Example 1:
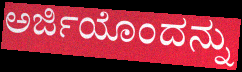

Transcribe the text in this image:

ಅರ್ಜಿಯೊಂದನ್ನು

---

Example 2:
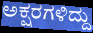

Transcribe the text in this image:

ಅಕ್ಷರಗಳಿದ್ದು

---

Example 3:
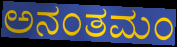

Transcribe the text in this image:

ಅನಂತಮಂ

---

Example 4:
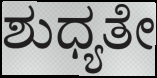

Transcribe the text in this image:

ಶುಧ್ಯತೇ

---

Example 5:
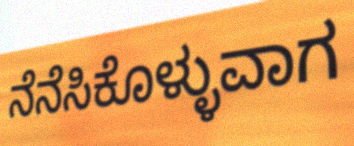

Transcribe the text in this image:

ನೆನೆಸಿಕೊಳ್ಳುವಾಗ